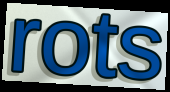
rots